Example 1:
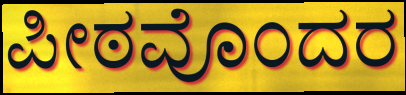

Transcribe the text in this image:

ಪೀಠವೊಂದರ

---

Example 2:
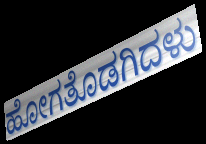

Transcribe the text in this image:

ಹೋಗತೊಡಗಿದಳು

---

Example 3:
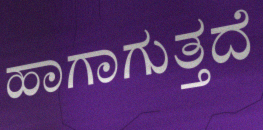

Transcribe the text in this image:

ಹಾಗಾಗುತ್ತದೆ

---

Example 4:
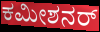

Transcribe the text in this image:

ಕಮೀಶನರ್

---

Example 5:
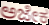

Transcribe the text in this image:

ಅಜೇಕ